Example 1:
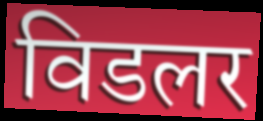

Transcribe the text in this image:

विडलर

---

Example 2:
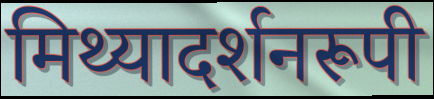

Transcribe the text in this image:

मिथ्यादर्शनरूपी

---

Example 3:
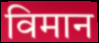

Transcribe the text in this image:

विमान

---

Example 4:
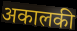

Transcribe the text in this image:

अकालकी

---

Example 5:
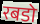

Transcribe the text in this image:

रबडो